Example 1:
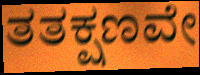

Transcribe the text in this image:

ತತಕ್ಷಣವೇ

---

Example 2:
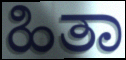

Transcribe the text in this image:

ಹಿತಾ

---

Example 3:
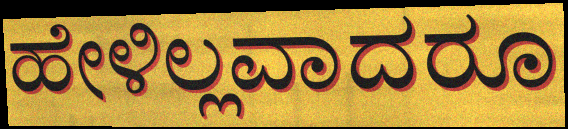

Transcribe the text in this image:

ಹೇಳಿಲ್ಲವಾದರೂ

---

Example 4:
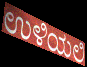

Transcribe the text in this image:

ಉಳಿಯಲಿ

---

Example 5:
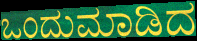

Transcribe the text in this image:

ಒಂದುಮಾಡಿದ